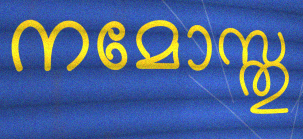
നമോസ്തു